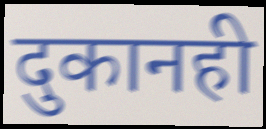
दुकानही